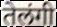
तेलंगी